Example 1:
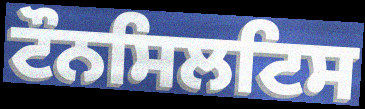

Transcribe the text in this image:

ਟੌਨਸਿਲਟਿਸ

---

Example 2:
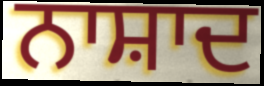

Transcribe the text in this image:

ਨਾਸ਼ਾਦ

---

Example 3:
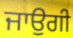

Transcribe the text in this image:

ਜਾਉਗੀ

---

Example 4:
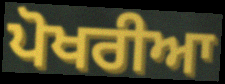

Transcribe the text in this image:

ਪੋਖਰੀਆ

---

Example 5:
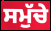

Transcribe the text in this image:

ਸਮੁੱਚੇ